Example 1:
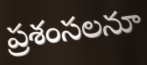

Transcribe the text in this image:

ప్రశంసలనూ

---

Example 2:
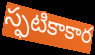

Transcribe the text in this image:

స్ఫటికాకార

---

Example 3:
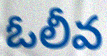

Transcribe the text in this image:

ఓలీవ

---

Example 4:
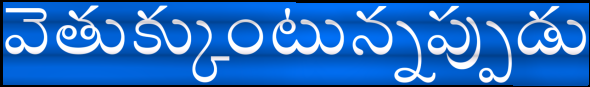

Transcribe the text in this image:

వెతుక్కుంటున్నప్పుడు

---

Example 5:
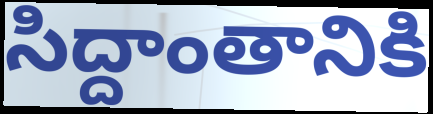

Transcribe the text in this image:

సిద్దాంతానికి